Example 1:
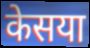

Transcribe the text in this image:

केसया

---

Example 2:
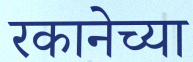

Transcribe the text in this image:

रकानेच्या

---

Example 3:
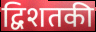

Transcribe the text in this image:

द्विशतकी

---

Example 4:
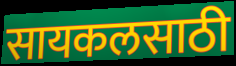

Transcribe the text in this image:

सायकलसाठी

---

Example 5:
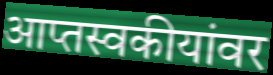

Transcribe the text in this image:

आप्तस्वकीयांवर